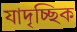
যাদৃচ্ছিক